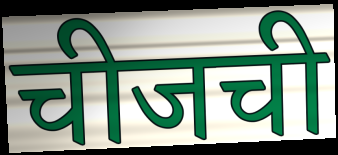
चीजची